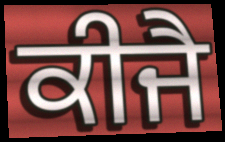
ਕੀਜੈ